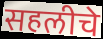
सहलीचे